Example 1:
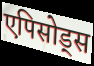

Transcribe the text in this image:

एपिसोड्स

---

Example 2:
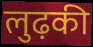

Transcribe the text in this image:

लुढ़की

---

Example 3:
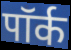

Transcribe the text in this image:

पॉर्क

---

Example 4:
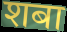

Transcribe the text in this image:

शबा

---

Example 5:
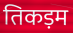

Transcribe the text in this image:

तिकड़म